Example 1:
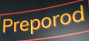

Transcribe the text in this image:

Preporod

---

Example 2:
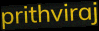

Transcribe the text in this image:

prithviraj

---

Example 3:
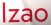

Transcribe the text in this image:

Izao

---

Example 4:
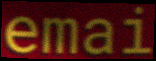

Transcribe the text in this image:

emai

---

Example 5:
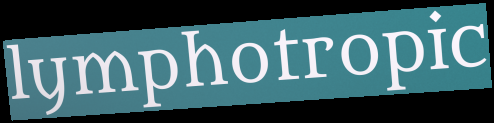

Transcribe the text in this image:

lymphotropic